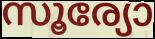
സൂര്യോ